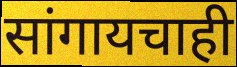
सांगायचाही